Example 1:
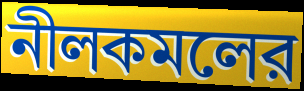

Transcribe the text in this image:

নীলকমলের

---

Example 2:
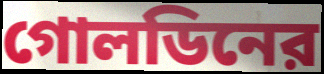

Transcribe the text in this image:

গোলডিনের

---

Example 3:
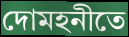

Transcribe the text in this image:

দোমহনীতে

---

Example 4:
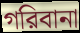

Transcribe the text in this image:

গরিবানা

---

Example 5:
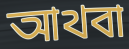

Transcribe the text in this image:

আথবা